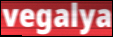
vegalya